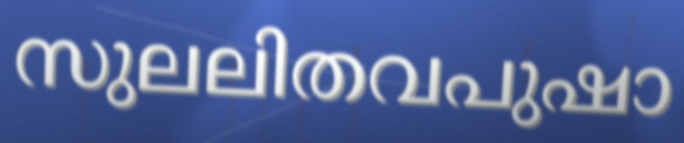
സുലലിതവപുഷാ